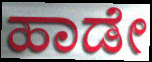
ಹಾಡೇ